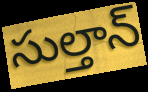
సుల్తాన్